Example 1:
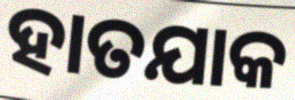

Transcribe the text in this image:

ହାତଯାକ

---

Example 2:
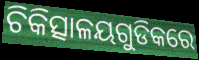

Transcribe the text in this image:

ଚିକିତ୍ସାଳୟଗୁଡିକରେ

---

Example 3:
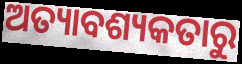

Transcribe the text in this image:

ଅତ୍ୟାବଶ୍ୟକତାରୁ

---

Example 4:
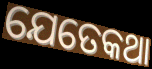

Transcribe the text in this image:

ଯେତେକଥା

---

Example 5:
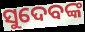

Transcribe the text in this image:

ସୁଦେବଙ୍କ